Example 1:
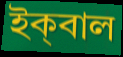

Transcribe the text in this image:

ইক্‌বাল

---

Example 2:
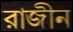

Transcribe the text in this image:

রাজীন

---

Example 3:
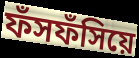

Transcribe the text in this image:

ফঁসফঁসিয়ে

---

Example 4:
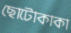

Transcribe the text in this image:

ছোটোকাকা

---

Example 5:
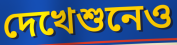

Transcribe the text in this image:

দেখেশুনেও